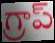
గ్రాప్